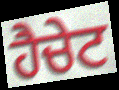
ਹੈਚੇਟ